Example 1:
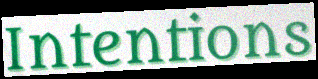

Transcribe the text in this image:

Intentions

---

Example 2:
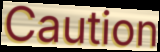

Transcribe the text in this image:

Caution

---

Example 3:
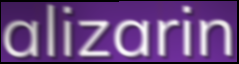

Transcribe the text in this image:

alizarin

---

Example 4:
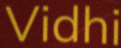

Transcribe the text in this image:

Vidhi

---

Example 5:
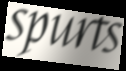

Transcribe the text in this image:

spurts